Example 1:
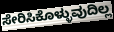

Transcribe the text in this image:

ಸೇರಿಸಿಕೊಳ್ಳುವುದಿಲ್ಲ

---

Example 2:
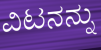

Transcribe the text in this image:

ವಿಟನನ್ನು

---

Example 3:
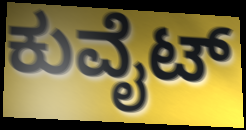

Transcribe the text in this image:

ಕುವೈಟ್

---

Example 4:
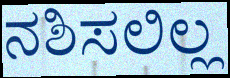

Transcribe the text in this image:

ನಶಿಸಲಿಲ್ಲ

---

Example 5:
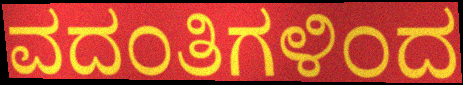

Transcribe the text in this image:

ವದಂತಿಗಳಿಂದ